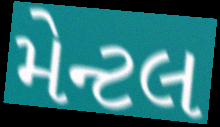
મેન્ટલ